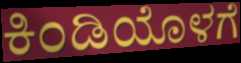
ಕಿಂಡಿಯೊಳಗೆ